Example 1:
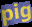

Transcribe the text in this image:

pig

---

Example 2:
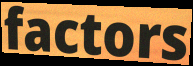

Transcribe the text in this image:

factors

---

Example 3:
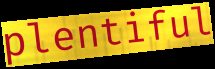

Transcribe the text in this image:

plentiful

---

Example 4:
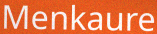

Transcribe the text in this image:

Menkaure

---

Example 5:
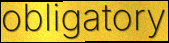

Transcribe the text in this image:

obligatory